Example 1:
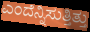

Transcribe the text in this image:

ಎಂದೆನ್ನಿಸುತ್ತಿತ್ತು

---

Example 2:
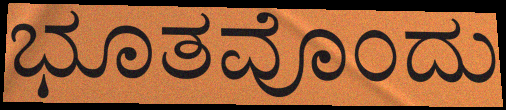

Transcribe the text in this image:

ಭೂತವೊಂದು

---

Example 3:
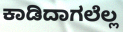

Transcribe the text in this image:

ಕಾಡಿದಾಗಲೆಲ್ಲ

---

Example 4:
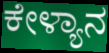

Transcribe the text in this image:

ಕೇಳ್ಯಾನ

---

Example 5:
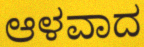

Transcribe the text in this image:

ಆಳವಾದ